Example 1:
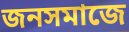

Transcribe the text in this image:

জনসমাজে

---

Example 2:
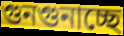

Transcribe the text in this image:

গুনগুনাচ্ছে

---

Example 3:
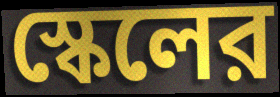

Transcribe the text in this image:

স্কেলের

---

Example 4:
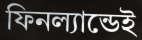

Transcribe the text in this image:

ফিনল্যান্ডেই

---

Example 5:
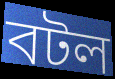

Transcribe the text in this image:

বটল